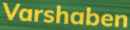
Varshaben